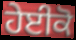
ਹੇਈਕੋ